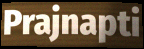
Prajnapti